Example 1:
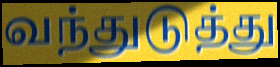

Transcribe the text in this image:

வந்துடுத்து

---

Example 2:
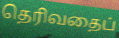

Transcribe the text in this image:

தெரிவதைப்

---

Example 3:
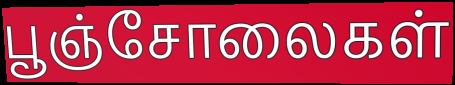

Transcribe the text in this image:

பூஞ்சோலைகள்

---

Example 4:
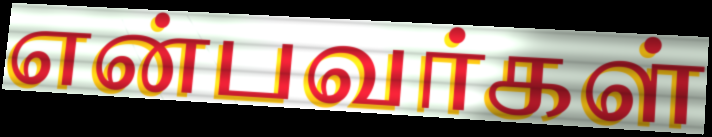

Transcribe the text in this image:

என்பவர்கள்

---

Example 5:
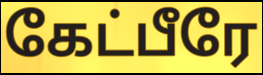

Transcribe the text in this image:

கேட்பீரே